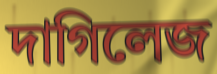
দাগিলেজ